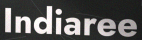
Indiaree